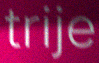
trije